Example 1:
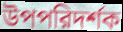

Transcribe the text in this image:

উপপরিদর্শক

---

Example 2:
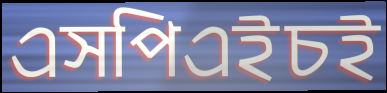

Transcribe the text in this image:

এসপিএইচই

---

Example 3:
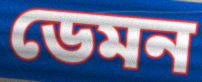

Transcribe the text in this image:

ডেমন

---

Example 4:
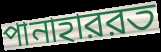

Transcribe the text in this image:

পানাহাররত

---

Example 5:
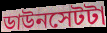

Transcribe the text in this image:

ডাউনসেটটা